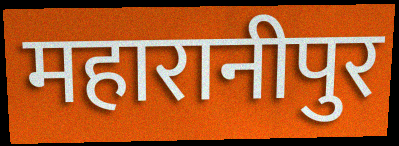
महारानीपुर